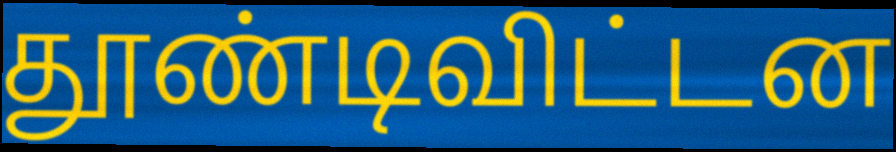
தூண்டிவிட்டன